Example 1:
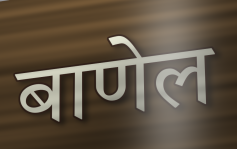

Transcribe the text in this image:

बाणेल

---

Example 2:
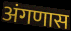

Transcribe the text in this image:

अंगणास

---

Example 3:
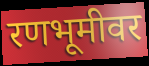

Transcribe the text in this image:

रणभूमीवर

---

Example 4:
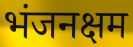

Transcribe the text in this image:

भंजनक्षम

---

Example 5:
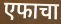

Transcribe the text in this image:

एफाचा